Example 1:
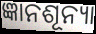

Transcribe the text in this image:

ଜ୍ଞାନଶୂନ୍ୟା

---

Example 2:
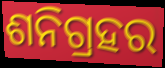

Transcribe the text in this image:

ଶନିଗ୍ରହର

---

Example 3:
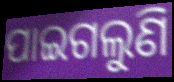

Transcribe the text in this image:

ପାଇଗଲୁଣି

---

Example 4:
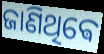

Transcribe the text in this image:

ଜାଣିଥିଵେ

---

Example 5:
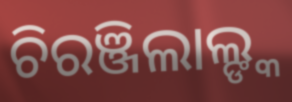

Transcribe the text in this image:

ଚିରଞ୍ଜିଲାଲ୍ଙ୍କ